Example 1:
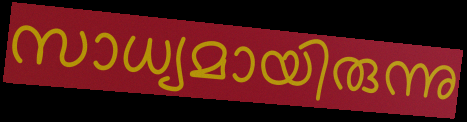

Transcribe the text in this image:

സാധ്യമായിരുന്നു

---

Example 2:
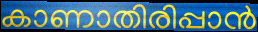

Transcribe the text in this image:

കാണാതിരിപ്പാൻ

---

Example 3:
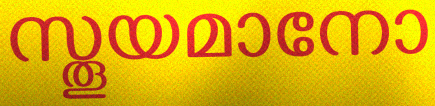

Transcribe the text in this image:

സ്തൂയമാനോ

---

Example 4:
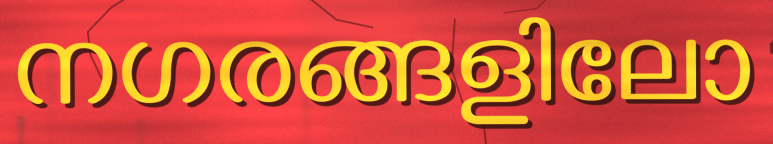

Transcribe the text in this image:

നഗരങ്ങളിലോ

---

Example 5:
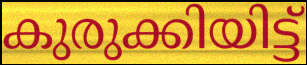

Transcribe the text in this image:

കുരുക്കിയിട്ട്